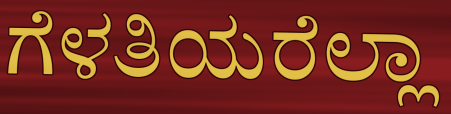
ಗೆಳತಿಯರೆಲ್ಲಾ